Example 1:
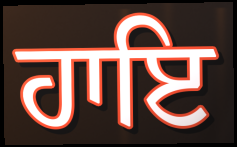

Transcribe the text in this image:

ਹਾਇ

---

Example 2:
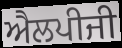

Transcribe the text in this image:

ਐਲਪੀਜੀ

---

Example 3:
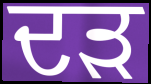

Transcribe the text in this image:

ਦੜ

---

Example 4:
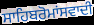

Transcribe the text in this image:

ਸਾਹਿਬਰੋਮਾਂਸਵਾਦੀ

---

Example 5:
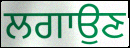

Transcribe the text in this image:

ਲਗਾਉਣ